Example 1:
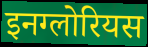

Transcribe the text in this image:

इनग्लोरियस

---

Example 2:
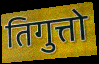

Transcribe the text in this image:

तिगुत्तो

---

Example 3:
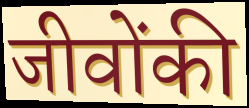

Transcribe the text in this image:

जीवोंकी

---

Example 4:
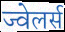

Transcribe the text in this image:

ज्वेलर्स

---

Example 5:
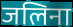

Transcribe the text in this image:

जलिना